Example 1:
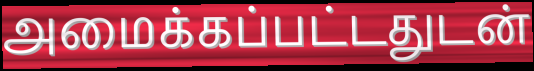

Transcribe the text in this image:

அமைக்கப்பட்டதுடன்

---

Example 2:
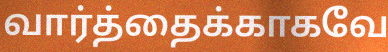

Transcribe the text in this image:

வார்த்தைக்காகவே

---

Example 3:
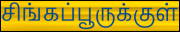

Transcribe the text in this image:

சிங்கப்பூருக்குள்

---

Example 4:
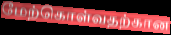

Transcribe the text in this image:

மேற்கொள்வதற்கான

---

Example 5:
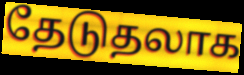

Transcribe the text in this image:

தேடுதலாக